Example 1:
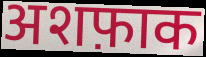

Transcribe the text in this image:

अशफ़ाक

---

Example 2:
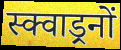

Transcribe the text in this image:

स्क्वाड्रनों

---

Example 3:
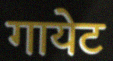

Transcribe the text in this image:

गायेट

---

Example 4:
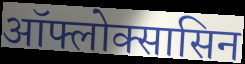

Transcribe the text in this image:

ऑफ्लोक्सासिन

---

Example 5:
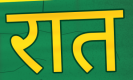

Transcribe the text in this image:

रात